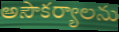
అసౌకర్యాలను